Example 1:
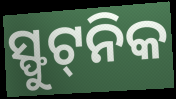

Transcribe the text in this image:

ସ୍ଫୁଟ୍‌ନିକ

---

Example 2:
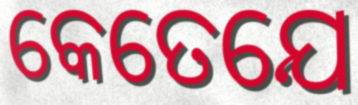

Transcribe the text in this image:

କେତେଯେ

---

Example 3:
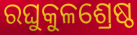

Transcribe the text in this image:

ରଘୁକୁଳଶ୍ରେଷ୍ଠ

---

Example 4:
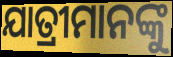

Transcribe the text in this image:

ଯାତ୍ରୀମାନଙ୍କୁ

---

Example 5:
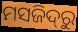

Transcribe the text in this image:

ମସଜିଦ୍‌ରୁ